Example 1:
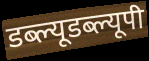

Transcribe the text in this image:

डब्ल्यूडब्ल्यूपी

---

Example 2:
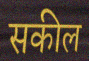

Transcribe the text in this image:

सकील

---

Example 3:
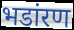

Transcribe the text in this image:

भडांरण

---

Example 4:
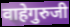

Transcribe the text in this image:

वाहेगुरुजी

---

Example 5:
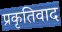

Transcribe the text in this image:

प्रकृतिवाद